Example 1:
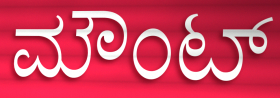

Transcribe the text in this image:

ಮೌಂಟ್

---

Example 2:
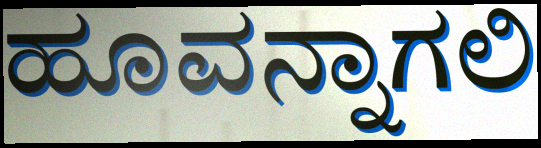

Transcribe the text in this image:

ಹೂವನ್ನಾಗಲಿ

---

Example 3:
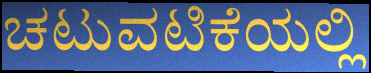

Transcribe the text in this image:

ಚಟುವಟಿಕೆಯಲ್ಲಿ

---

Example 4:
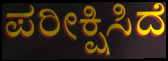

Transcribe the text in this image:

ಪರೀಕ್ಷಿಸಿದೆ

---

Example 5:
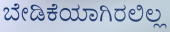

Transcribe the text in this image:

ಬೇಡಿಕೆಯಾಗಿರಲಿಲ್ಲ